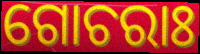
ଗୋଚରାଃ